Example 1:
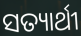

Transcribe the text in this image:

ସତ୍ୟାର୍ଥୀ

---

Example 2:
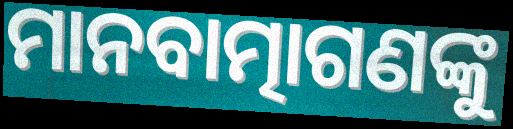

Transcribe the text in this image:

ମାନବାତ୍ମାଗଣଙ୍କୁ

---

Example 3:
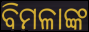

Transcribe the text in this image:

ବିମଳାଙ୍କ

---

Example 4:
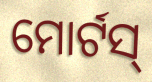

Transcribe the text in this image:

ମୋର୍ଟସ୍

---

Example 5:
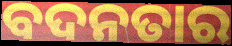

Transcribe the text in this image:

ବଦନତାର